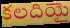
కలదియై